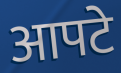
आपटे